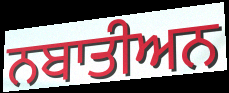
ਨਬਾਤੀਅਨ